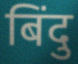
बिंदु